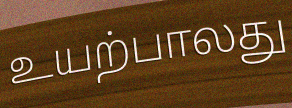
உயற்பாலது